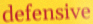
defensive